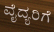
ವೈದ್ಯರಿಗೆ